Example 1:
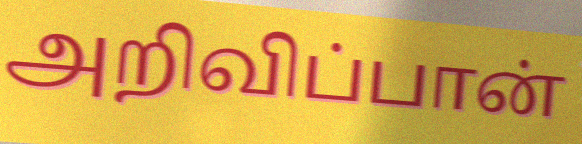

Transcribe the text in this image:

அறிவிப்பான்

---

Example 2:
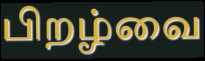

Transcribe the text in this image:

பிறழ்வை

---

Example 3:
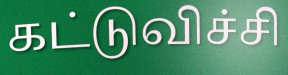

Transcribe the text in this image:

கட்டுவிச்சி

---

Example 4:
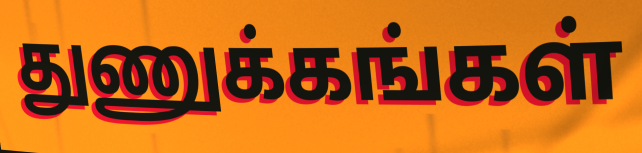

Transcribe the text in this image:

துணுக்கங்கள்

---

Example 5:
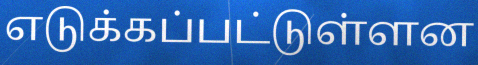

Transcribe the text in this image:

எடுக்கப்பட்டுள்ளன